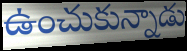
ఉంచుకున్నాడు